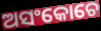
ଅସଂକୋଚେ